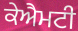
ਕੇਐਮਟੀ